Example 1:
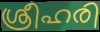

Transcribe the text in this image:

ശ്രീഹരി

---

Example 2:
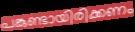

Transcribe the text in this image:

പങ്കുണ്ടായിരിക്കണം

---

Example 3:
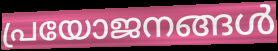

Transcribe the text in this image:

പ്രയോജനങ്ങൾ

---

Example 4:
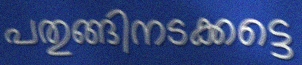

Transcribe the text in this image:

പതുങ്ങിനടക്കട്ടെ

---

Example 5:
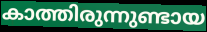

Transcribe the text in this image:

കാത്തിരുന്നുണ്ടായ